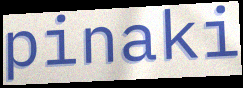
pinaki